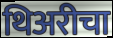
थिअरीचा